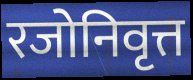
रजोनिवृत्त